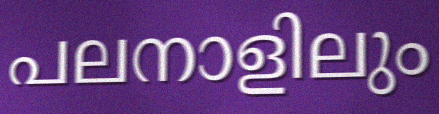
പലനാളിലും